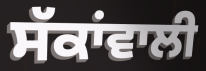
ਸੱਕਾਂਵਾਲੀ